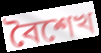
বৈশেখ